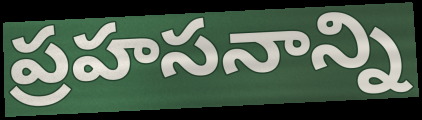
ప్రహసనాన్ని